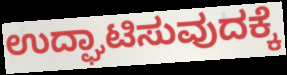
ಉದ್ಘಾಟಿಸುವುದಕ್ಕೆ